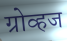
ग्रोव्हज